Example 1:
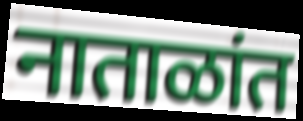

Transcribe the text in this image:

नाताळांत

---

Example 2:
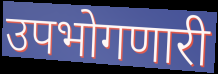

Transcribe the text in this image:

उपभोगणारी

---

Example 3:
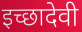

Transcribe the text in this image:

इच्छादेवी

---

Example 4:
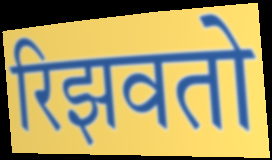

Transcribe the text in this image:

रिझवतो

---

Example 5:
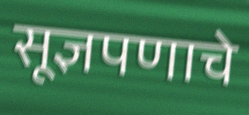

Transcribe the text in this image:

सूज्ञपणाचे